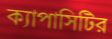
ক্যাপাসিটির